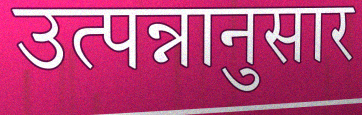
उत्पन्नानुसार